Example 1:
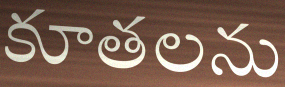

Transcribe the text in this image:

కూతలను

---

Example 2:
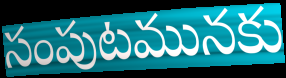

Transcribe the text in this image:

సంపుటమునకు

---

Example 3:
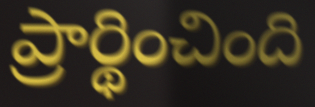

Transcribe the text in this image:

ప్రార్థించింది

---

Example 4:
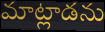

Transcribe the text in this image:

మాట్లాడను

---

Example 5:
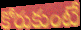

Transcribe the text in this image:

కోరుకుంటే